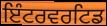
ਇੰਟਰਵਰਟਿਡ